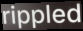
rippled